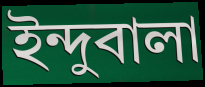
ইন্দুবালা